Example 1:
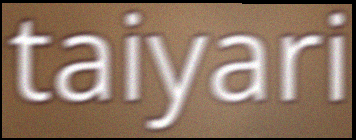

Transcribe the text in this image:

taiyari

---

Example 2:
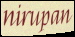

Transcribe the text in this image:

nirupan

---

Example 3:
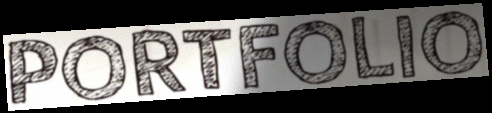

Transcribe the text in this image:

PORTFOLIO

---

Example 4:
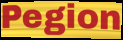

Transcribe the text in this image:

Pegion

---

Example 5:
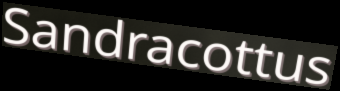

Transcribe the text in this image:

Sandracottus